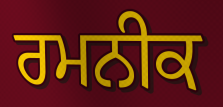
ਰਮਨੀਕ